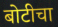
बोटीचा